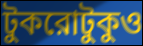
টুকরোটুকুও